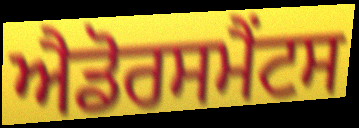
ਐਡੋਰਸਮੈਂਟਸ